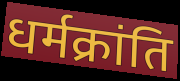
धर्मक्रांति